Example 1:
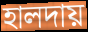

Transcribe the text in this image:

হালদায়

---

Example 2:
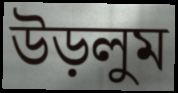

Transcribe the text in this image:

উড়লুম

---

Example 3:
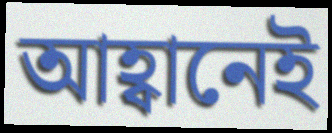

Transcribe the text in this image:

আহ্বানেই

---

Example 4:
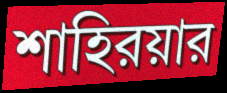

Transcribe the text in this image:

শাহিরয়ার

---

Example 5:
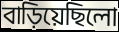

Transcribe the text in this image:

বাড়িয়েছিলো